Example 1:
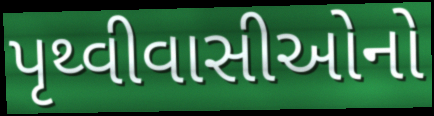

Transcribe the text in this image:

પૃથ્વીવાસીઓનો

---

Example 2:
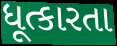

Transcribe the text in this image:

ધૂત્કારતા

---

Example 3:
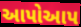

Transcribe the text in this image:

આપોઆપ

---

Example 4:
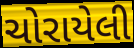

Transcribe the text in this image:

ચોરાયેલી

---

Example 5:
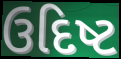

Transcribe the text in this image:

ઉદિષ્ટ